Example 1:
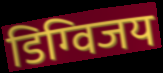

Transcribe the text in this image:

डिग्विजय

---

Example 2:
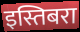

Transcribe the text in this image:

इस्तिबरा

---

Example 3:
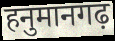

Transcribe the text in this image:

हनुमानगढ़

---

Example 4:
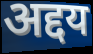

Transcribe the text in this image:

अद्दय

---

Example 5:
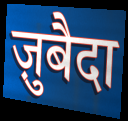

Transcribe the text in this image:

ज़ुबैदा